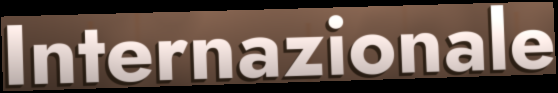
Internazionale